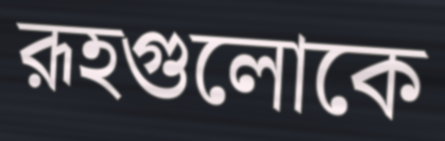
রূহগুলোকে